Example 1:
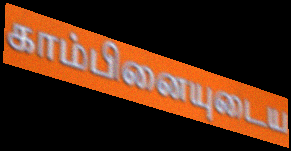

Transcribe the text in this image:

காம்பினையுடைய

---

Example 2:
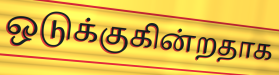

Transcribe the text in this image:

ஒடுக்குகின்றதாக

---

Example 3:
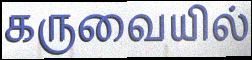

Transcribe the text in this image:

கருவையில்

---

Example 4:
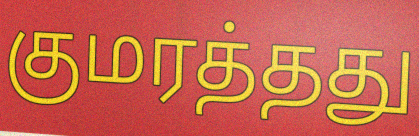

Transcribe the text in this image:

குமரத்தது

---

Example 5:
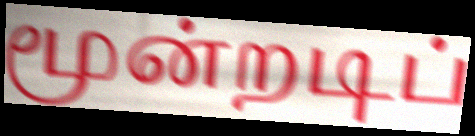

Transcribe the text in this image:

மூன்றடிப்